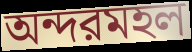
অন্দরমহল